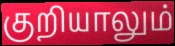
குறியாலும்